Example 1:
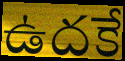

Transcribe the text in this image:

ఉదకే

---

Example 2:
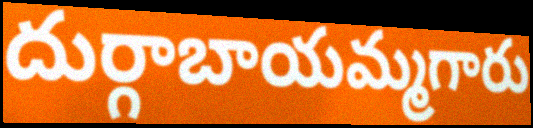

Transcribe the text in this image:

దుర్గాబాయమ్మగారు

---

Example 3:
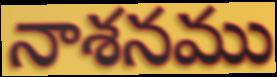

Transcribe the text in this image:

నాశనము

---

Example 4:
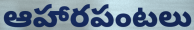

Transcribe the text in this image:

ఆహారపంటలు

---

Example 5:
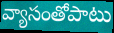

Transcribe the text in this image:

వ్యాసంతోపాటు